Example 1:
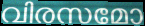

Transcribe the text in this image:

വിരസമോ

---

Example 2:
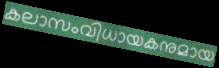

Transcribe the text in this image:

കലാസംവിധായകനുമായ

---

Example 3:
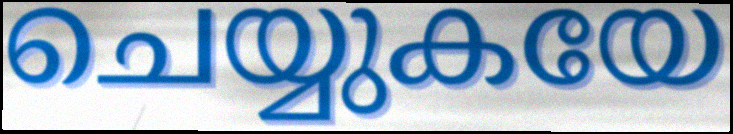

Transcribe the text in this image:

ചെയ്യുകയേ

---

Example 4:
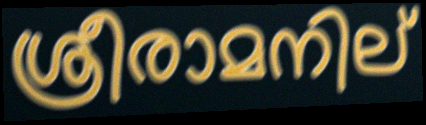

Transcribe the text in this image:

ശ്രീരാമനില്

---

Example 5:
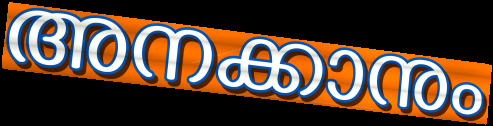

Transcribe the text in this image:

അനക്കാനും